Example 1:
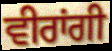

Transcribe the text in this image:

ਵੀਰਾਂਗੀ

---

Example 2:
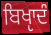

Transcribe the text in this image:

ਬਿਖੵਾਦੰ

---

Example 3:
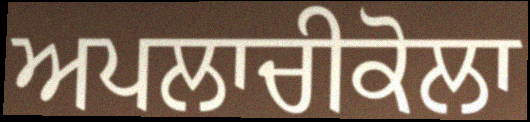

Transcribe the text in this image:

ਅਪਲਾਚੀਕੋਲਾ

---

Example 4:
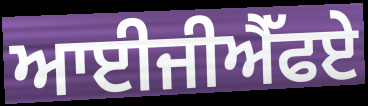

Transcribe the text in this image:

ਆਈਜੀਐੱਫਏ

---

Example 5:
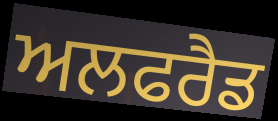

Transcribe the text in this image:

ਅਲਫਰੈਡ